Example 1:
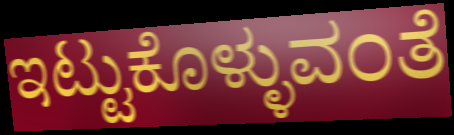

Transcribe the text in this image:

ಇಟ್ಟುಕೊಳ್ಳುವಂತೆ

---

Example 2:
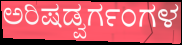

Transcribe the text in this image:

ಅರಿಷಡ್ವರ್ಗಂಗಳ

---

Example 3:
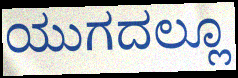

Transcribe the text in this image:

ಯುಗದಲ್ಲೂ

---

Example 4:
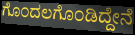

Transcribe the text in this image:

ಗೊಂದಲಗೊಂಡಿದ್ದೇನೆ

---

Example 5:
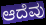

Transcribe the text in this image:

ಆದೆವು